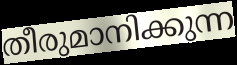
തീരുമാനിക്കുന്ന